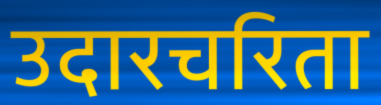
उदारचरिता